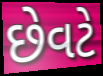
છેવટે